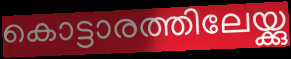
കൊട്ടാരത്തിലേയ്ക്കു